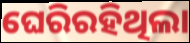
ଘେରିରହିଥିଲା